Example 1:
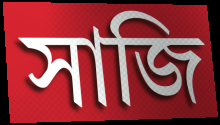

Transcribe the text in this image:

সাজি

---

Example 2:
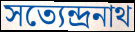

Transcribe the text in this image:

সত্যেন্দ্ৰনাথ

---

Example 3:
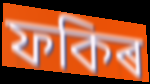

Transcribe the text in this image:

ফকিৰ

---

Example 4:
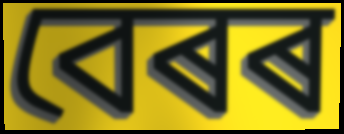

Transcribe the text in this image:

বেৰৰ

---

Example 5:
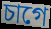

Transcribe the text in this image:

চাগে